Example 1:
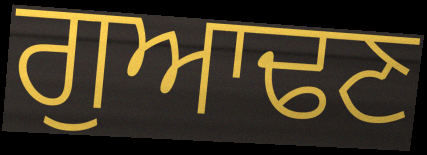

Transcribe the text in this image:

ਗੁਆਢਣ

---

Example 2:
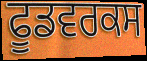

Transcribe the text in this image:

ਫੂਡਵਰਕਸ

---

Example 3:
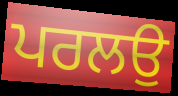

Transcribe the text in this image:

ਪਰਲਉ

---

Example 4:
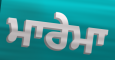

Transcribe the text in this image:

ਮਾਰੇਮਾ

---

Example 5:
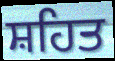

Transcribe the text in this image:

ਸ਼ਹਿਤ